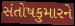
સંતોષકુમારને